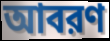
আবরণ